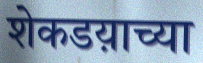
शेकडय़ाच्या